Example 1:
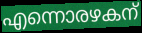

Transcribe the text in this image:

എന്നൊരഴകന്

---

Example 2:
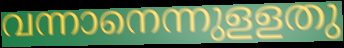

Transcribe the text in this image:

വന്നാനെന്നുളളതു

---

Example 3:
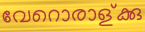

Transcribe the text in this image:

വേറൊരാള്ക്കു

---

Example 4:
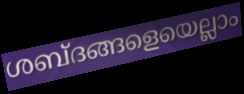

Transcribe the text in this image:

ശബ്ദങ്ങളെയെല്ലാം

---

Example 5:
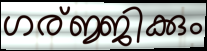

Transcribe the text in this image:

ഗര്ജ്ജിക്കും